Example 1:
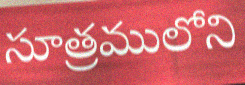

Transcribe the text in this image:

సూత్రములోని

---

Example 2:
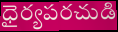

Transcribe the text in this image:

ధైర్యపరచుడి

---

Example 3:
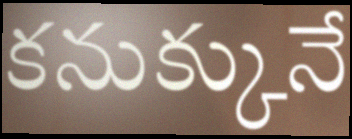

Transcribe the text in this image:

కనుక్కునే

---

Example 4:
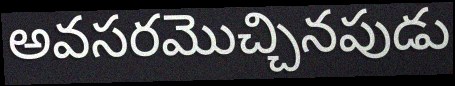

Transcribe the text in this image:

అవసరమొచ్చినపుడు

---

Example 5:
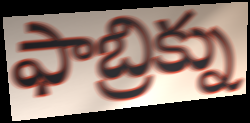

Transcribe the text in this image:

ఫాబ్రిక్ను